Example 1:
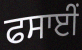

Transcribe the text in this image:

ਫਸਾਈਂ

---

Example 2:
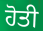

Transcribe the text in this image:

ਹੋਤੀ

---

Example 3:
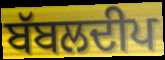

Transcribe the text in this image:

ਬੱਬਲਦੀਪ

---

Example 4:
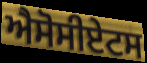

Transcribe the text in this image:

ਐਸੋਸੀਏਟਸ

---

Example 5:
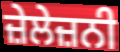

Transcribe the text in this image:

ਜ਼ੇਲੇਜ਼ਨੀ